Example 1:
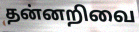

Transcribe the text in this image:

தன்னறிவை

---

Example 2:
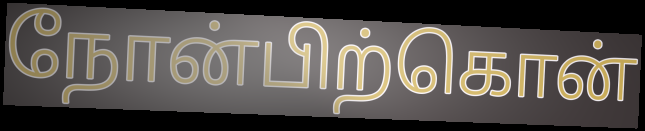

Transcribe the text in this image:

நோன்பிற்கொன்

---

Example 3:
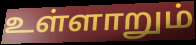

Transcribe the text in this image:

உள்ளாறும்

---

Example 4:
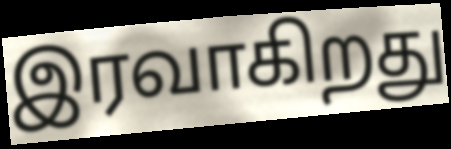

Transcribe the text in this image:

இரவாகிறது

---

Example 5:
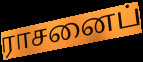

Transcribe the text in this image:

ராசனைப்